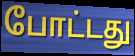
போட்டது